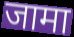
जामा